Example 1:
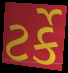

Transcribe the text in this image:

ટર્કે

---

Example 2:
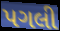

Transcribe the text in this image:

પગલી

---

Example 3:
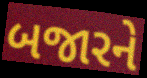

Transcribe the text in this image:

બજારને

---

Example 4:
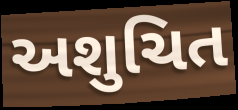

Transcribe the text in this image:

અશુચિત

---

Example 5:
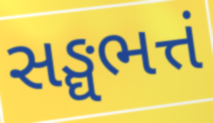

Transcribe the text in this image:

સઙ્ઘભત્તં